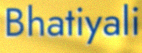
Bhatiyali